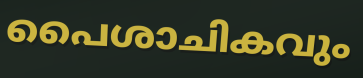
പൈശാചികവും